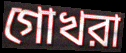
গোখরা